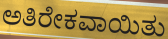
ಅತಿರೇಕವಾಯಿತು